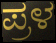
ಪ್ರಳ